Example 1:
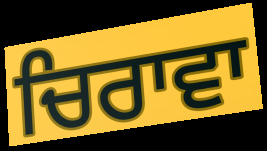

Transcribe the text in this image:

ਚਿਰਾਵਾ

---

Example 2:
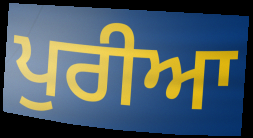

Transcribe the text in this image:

ਪੁਰੀਆ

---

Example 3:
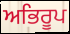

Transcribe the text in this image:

ਅਭਿਰੂਪ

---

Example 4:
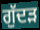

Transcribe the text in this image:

ਗੁੱਦੜ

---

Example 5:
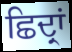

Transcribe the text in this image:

ਛਿਦ੍ਰਾਂ